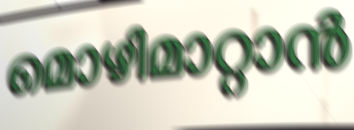
മൊഴിമാറ്റാൻ